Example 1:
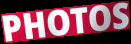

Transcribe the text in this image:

PHOTOS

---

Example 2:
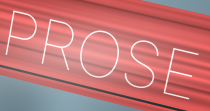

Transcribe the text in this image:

PROSE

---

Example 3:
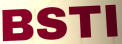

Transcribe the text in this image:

BSTI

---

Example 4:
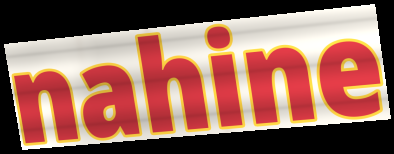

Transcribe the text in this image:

nahine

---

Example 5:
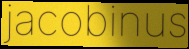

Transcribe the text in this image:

jacobinus